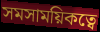
সমসাময়িকত্বে